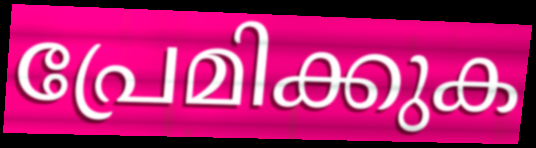
പ്രേമിക്കുക